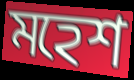
মহেশ